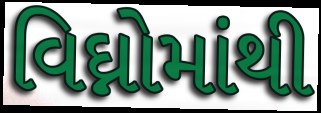
વિઘ્નોમાંથી